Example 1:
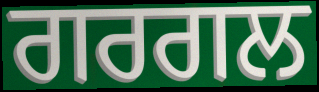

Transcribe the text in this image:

ਗਰਗਲ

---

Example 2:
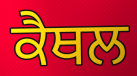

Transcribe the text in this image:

ਕੈਥਲ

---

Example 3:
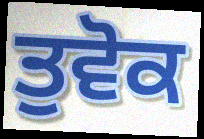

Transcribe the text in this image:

ਤੁਵੋਕ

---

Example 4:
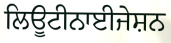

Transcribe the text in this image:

ਲਿਊਟੀਨਾਈਜੇਸ਼ਨ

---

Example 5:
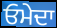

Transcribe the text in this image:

ਓਮੇਦਾ